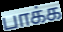
பாக்க